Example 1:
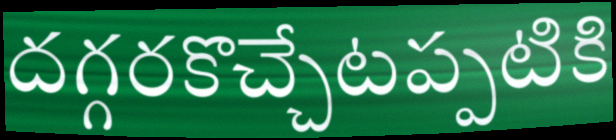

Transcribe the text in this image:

దగ్గరకొచ్చేటప్పటికి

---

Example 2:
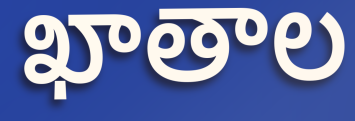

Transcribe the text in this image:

ఖాతాల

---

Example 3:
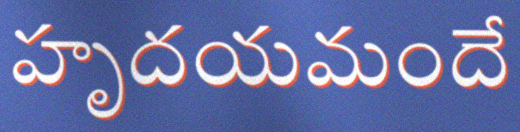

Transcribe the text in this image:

హృదయమందే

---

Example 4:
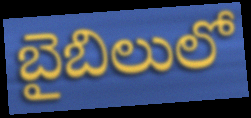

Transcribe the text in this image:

బైబిలులో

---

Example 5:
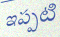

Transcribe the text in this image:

ఇప్పటి